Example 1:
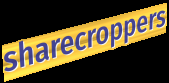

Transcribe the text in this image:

sharecroppers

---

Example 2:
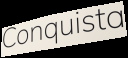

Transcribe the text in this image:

Conquista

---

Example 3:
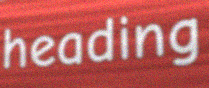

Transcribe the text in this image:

heading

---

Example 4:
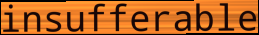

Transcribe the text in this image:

insufferable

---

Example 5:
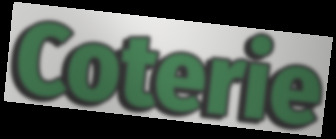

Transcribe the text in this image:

Coterie